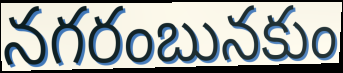
నగరంబునకుం